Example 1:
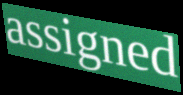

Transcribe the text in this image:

assigned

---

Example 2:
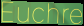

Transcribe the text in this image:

Euchre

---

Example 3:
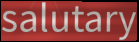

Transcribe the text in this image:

salutary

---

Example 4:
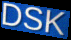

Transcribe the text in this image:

DSK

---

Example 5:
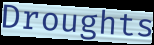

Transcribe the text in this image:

Droughts